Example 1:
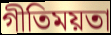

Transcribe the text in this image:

গীতিময়তা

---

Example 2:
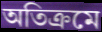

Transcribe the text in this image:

অতিক্ৰমে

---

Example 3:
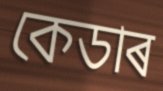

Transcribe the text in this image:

কেডাৰ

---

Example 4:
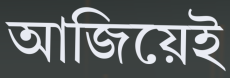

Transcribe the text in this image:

আজিয়েই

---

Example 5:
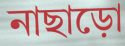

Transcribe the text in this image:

নাছাড়ো